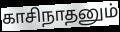
காசிநாதனும்